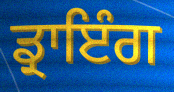
ਡ੍ਰਾਇੰਗ